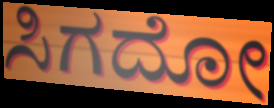
ಸಿಗದೋ